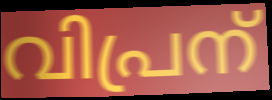
വിപ്രന്